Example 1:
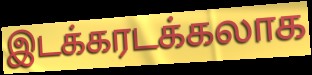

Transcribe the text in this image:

இடக்கரடக்கலாக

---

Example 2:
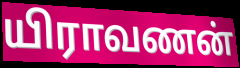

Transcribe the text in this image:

யிராவணன்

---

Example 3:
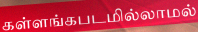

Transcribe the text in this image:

கள்ளங்கபடமில்லாமல்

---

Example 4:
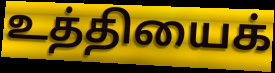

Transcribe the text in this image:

உத்தியைக்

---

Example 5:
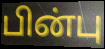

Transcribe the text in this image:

பின்பு